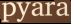
pyara